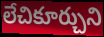
లేచికూర్చుని